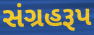
સંગ્રહરૂપ